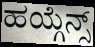
ಹಯ್ಗೆನ್ಸ್